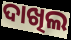
ଦାଖିଲ